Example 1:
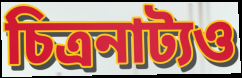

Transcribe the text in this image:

চিত্রনাট্যও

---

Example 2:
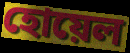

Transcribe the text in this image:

হোয়েল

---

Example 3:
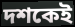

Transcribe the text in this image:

দশকেই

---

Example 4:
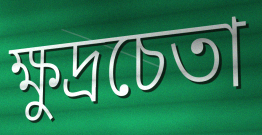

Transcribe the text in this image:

ক্ষুদ্রচেতা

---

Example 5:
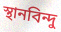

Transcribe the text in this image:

স্থানবিন্দু